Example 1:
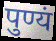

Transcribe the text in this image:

पुण्यं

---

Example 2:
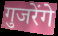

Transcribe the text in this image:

गुजरेंगे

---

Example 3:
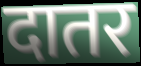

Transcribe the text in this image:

दातर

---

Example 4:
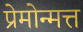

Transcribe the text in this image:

प्रेमोन्मत्त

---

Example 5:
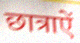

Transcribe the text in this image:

छात्राऐं